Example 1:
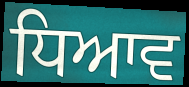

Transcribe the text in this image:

ਧਿਆਵ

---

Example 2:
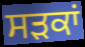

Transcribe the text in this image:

ਸਡ਼ਕਾਂ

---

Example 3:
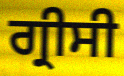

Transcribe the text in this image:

ਗ੍ਰੀਸੀ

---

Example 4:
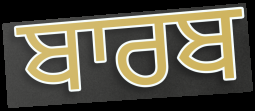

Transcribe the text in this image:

ਬਾਰਬ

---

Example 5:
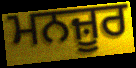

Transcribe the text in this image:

ਮਨਜ਼ੂਰ